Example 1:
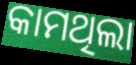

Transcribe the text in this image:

କାମଥିଲା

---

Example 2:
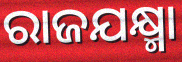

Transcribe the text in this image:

ରାଜଯକ୍ଷ୍ମା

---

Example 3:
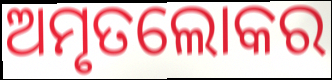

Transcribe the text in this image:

ଅମୃତଲୋକର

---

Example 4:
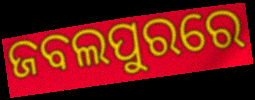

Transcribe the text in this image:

ଜବଲପୁରରେ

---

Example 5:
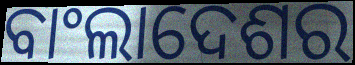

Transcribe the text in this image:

ବାଂଲାଦେଶର